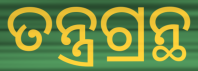
ତନ୍ତ୍ରଗ୍ରନ୍ଥ